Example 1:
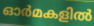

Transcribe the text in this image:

ഓർമകളിൽ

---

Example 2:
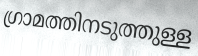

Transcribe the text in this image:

ഗ്രാമത്തിനടുത്തുള്ള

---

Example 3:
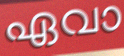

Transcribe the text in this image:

ഏവാ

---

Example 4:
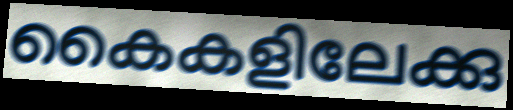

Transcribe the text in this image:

കൈകളിലേക്കു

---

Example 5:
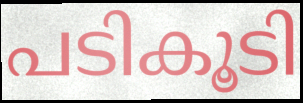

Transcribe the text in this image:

പടികൂടി